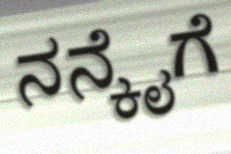
ನನ್ಕೈಗೆ